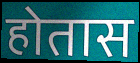
होतास